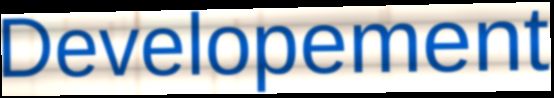
Developement